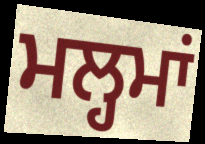
ਮਲ੍ਹਮਾਂ